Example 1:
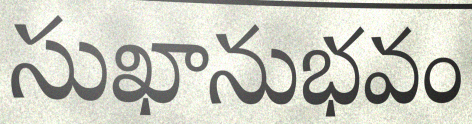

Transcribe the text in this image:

సుఖానుభవం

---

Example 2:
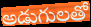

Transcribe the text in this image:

అడుగులతో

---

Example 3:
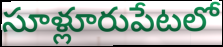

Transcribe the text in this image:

సూళ్లూరుపేటలో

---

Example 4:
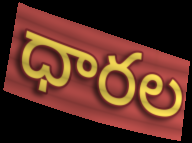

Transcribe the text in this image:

ధారల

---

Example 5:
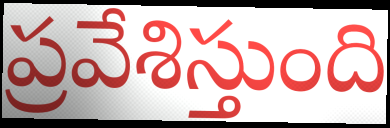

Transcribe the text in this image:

ప్రవేశిస్తుంది